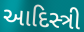
આદિસ્ત્રી